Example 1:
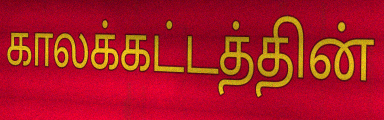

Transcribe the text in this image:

காலக்கட்டத்தின்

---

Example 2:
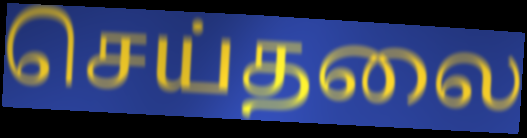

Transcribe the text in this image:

செய்தலை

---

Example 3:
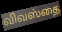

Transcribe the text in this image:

விவஸ்தை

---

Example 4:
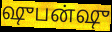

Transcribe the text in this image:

ஷுபன்ஷு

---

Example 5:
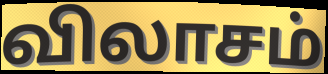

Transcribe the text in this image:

விலாசம்